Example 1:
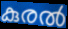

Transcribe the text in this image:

കുരൽ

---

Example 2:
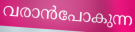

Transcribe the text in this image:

വരാൻപോകുന്ന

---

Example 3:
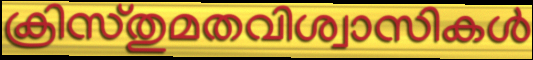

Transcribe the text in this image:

ക്രിസ്തുമതവിശ്വാസികൾ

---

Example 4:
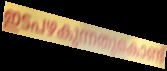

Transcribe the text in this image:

ഇടപഴകുന്നതുകൊണ്ട്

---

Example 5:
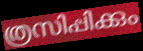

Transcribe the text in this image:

ത്രസിപ്പിക്കും